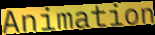
Animation